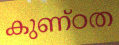
കുണ്ഠത